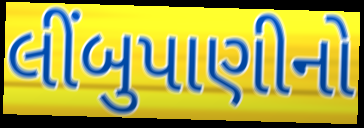
લીંબુપાણીનો